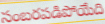
సంబరపడిపోయేది